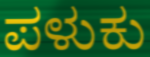
ಪಳುಕು